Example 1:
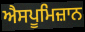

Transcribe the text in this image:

ਐਸਪੂਮਿਜ਼ਾਨ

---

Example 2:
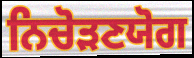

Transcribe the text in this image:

ਨਿਚੋੜਣਯੋਗ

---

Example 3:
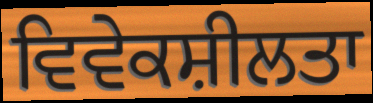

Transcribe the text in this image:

ਵਿਵੇਕਸ਼ੀਲਤਾ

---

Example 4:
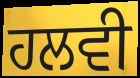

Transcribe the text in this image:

ਹਲਵੀ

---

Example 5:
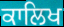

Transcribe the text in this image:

ਕਾਲਿਖ